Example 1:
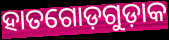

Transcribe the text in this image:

ହାତଗୋଡ଼ଗୁଡ଼ାକ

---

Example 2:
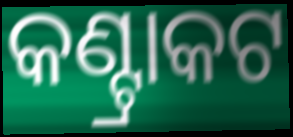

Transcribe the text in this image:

କଣ୍ଟ୍ରାକଟ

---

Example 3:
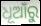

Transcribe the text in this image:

ଧୂଆଁରୁ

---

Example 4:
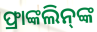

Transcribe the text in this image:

ଫ୍ରାଙ୍କଲିନ୍‌ଙ୍କ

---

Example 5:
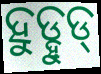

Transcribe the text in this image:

ହୁଡ୍ହୁଡ୍